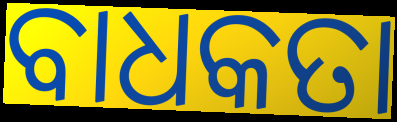
ବାଧକତା